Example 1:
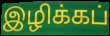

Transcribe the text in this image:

இழிக்கப்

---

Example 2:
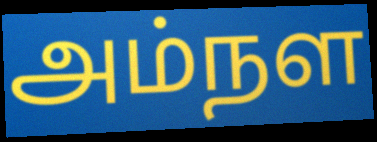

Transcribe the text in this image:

அம்நள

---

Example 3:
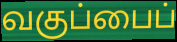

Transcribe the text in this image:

வகுப்பைப்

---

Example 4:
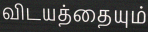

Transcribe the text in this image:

விடயத்தையும்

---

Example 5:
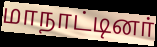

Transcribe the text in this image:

மாநாட்டினர்